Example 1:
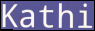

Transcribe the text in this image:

Kathi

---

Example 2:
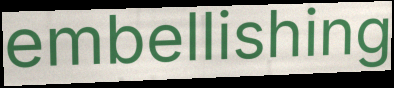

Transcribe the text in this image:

embellishing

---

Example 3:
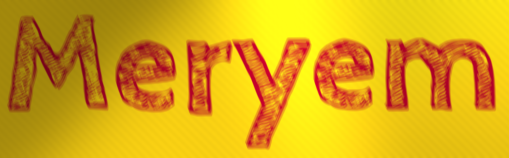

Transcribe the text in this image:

Meryem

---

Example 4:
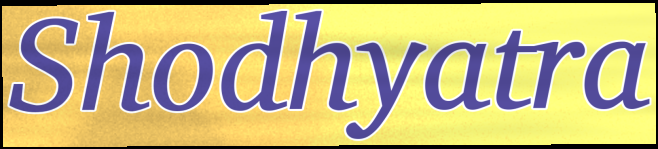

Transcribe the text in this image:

Shodhyatra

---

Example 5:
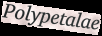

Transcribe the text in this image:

Polypetalae